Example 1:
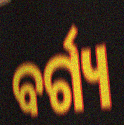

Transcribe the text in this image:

ବର୍ଗ୍ୟ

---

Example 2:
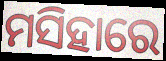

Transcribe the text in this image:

ମସିହାରେ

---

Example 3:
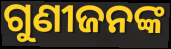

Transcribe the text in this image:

ଗୁଣୀଜନଙ୍କ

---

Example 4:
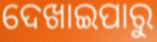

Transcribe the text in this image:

ଦେଖାଇପାରୁ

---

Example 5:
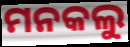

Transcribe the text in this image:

ମନକଲୁ